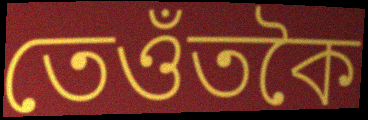
তেওঁতকৈ